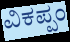
ವಿಕಪ್ಪಂ